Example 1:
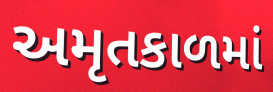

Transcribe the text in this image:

અમૃતકાળમાં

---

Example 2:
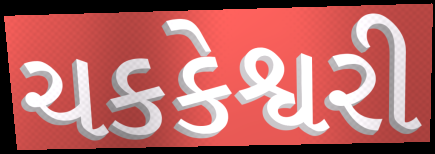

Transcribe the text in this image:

ચકકેશ્વરી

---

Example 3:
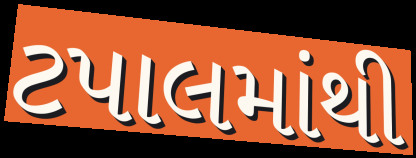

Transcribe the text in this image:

ટપાલમાંથી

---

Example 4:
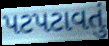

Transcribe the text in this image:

પટપટાવતું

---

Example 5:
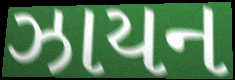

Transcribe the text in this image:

ઝાયન